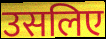
उसलिए